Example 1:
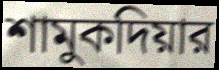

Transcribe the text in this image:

শামুকদিয়ার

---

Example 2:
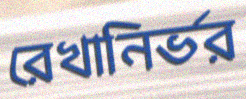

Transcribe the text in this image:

রেখানির্ভর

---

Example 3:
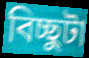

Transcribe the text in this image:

বিচ্ছুটা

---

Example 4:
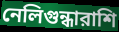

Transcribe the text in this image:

নেলিগুন্ধারাশি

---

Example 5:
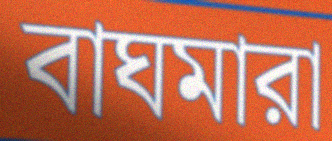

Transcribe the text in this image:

বাঘমারা